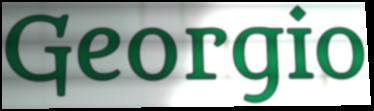
Georgio